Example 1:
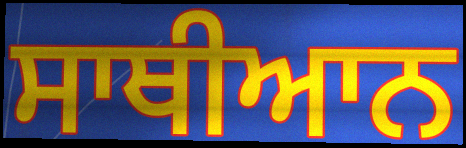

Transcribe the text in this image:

ਸਾਥੀਆਨ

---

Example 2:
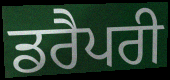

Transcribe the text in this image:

ਡਰੈਪਰੀ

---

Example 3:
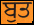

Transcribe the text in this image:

ਬੁਤ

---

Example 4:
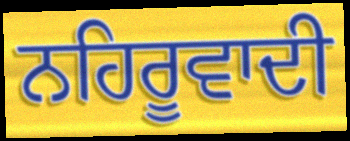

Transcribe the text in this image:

ਨਹਿਰੂਵਾਦੀ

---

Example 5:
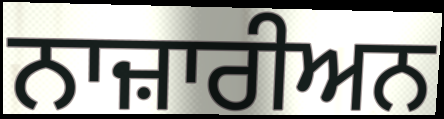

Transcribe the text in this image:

ਨਾਜ਼ਾਰੀਅਨ